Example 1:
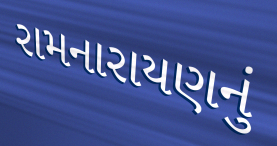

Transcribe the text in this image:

રામનારાયણનું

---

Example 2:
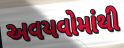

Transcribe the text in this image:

અવયવોમાંથી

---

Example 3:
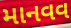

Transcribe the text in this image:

માનવવ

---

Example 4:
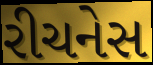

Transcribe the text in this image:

રીચનેસ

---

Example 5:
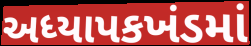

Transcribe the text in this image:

અધ્યાપકખંડમાં